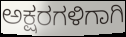
ಅಕ್ಷರಗಳಿಗಾಗಿ